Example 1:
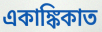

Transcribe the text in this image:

একাঙ্কিকাত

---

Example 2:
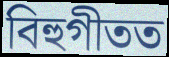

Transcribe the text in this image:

বিহুগীতত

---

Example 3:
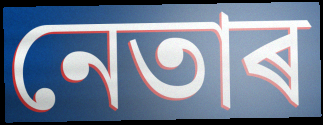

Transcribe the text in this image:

নেতাৰ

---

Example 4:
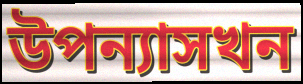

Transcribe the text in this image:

উপন্যাসখন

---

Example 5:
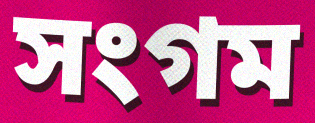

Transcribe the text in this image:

সংগম